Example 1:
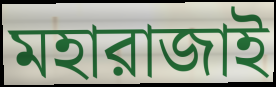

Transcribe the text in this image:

মহারাজাই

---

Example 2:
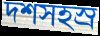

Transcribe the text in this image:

দশসহস্র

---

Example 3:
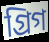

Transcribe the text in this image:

গ্রিগ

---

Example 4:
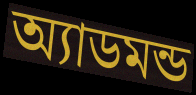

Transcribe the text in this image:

অ্যাডমন্ড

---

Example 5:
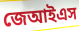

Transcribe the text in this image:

জেআইএস